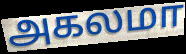
அகலமா